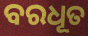
ବରଧୂତ